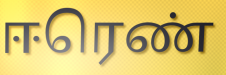
ஈரெண்